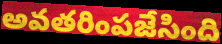
అవతరింపజేసింది